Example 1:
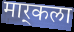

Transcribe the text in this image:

मार्कला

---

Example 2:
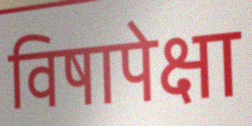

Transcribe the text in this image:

विषापेक्षा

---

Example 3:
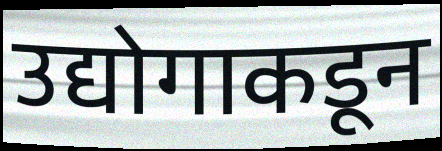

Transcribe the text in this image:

उद्योगाकडून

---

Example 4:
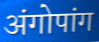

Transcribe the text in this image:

अंगोपांग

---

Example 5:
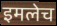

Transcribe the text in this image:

इमलेच